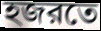
হজরতে